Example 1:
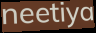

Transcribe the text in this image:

neetiya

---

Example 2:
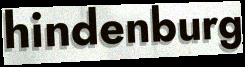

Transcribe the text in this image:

hindenburg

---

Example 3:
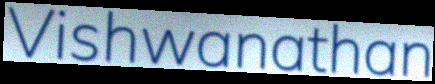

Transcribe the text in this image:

Vishwanathan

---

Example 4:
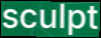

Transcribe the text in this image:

sculpt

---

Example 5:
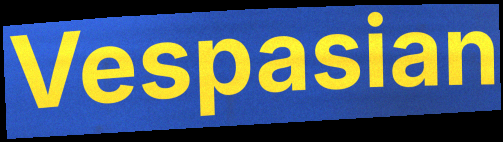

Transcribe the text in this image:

Vespasian